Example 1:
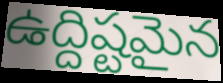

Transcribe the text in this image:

ఉద్దిష్టమైన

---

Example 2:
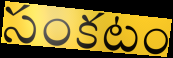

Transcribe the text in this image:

సంకటం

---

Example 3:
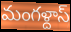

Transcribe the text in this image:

మంగళ్దాస్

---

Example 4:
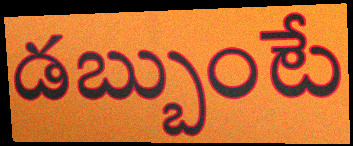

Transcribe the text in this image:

డబ్బుంటే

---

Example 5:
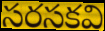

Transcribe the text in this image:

సరసకవి